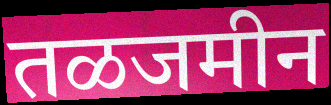
तळजमीन